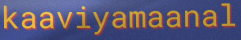
kaaviyamaanal